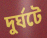
দুর্ঘটে